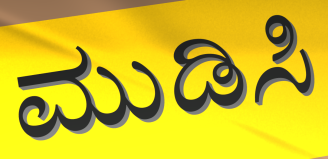
ಮುಡಿಸಿ